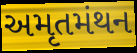
અમૃતમંથન